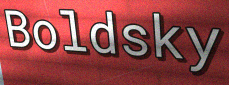
Boldsky